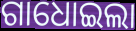
ଗାଧୋଇଲା